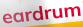
eardrum